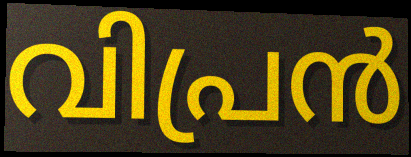
വിപ്രൻ